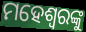
ମହେଶ୍ଵରଙ୍କୁ